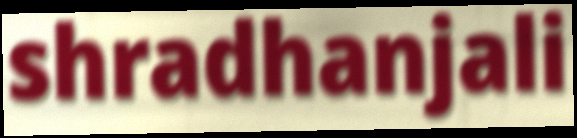
shradhanjali